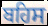
ਬਹਿਸ